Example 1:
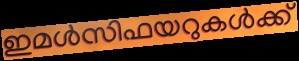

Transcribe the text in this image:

ഇമൾസിഫയറുകൾക്ക്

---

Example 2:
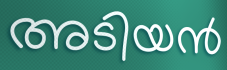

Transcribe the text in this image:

അടിയൻ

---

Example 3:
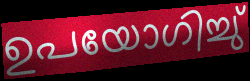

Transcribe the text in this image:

ഉപയോഗിച്ചു്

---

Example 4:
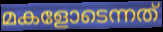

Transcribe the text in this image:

മകളോടെന്നത്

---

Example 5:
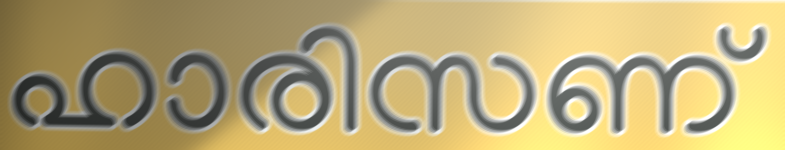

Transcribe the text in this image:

ഹാരിസണ്